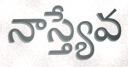
నాస్త్యేవ